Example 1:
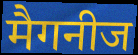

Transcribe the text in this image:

मैगनीज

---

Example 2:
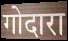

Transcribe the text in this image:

गोदारा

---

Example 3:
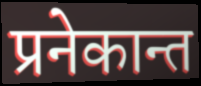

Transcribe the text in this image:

प्रनेकान्त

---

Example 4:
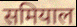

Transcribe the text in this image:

समियाल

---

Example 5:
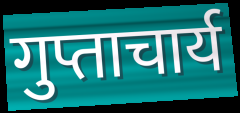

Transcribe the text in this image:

गुप्ताचार्य